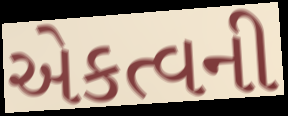
એકત્વની